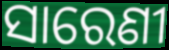
ସାରେଣୀ